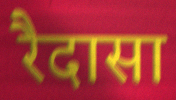
रैदासा